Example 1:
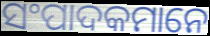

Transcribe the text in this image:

ସଂପାଦକମାନେ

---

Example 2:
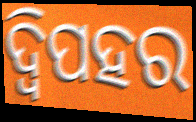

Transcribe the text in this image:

ଦ୍ୱିପହର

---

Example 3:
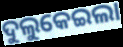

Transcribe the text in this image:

ଦୁଲୁକେଇଲା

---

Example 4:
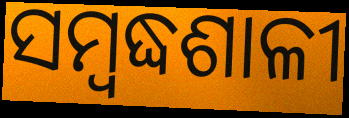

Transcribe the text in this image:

ସମ୍ବଦ୍ଧଶାଳୀ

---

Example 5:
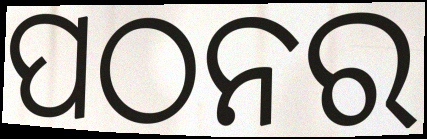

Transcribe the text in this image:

ପଠନର